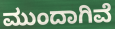
ಮುಂದಾಗಿವೆ